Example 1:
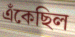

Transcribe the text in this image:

এঁকেছিল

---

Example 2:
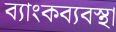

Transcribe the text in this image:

ব্যাংকব্যবস্থা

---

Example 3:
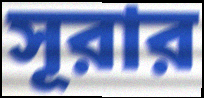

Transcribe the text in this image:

সূরার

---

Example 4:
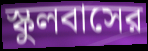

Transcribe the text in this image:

স্কুলবাসের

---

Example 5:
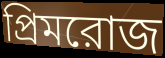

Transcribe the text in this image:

প্রিমরোজ